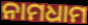
ନାମଧାମ